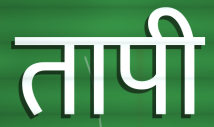
तापी